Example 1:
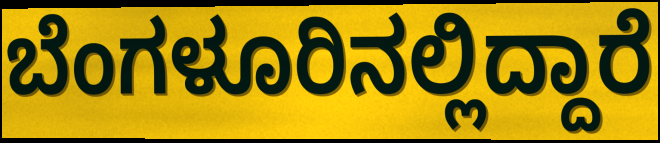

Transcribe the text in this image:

ಬೆಂಗಳೂರಿನಲ್ಲಿದ್ದಾರೆ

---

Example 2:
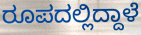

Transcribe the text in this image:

ರೂಪದಲ್ಲಿದ್ದಾಳೆ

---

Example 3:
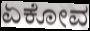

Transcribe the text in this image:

ಏಕೋವ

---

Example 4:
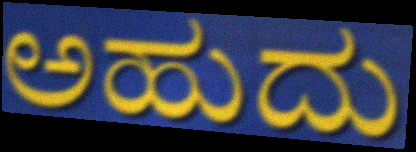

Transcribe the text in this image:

ಅಹುದು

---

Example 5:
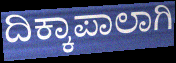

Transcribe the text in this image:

ದಿಕ್ಕಾಪಾಲಾಗಿ